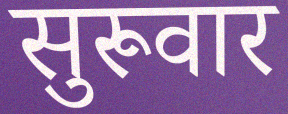
सुरूवार